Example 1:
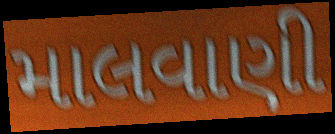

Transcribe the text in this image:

માલવાણી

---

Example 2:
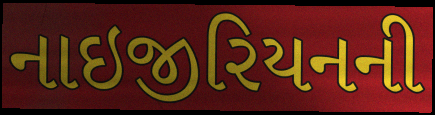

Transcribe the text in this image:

નાઇજીરિયનની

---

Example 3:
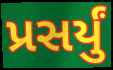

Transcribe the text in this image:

પ્રસર્યું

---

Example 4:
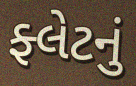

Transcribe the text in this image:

ફ્લેટનું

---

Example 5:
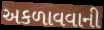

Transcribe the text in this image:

અકળાવવાની